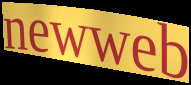
newweb